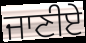
ਜਾਣੀਏ